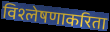
विश्लेषणाकरिता